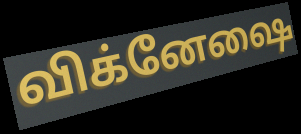
விக்னேஷை